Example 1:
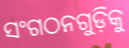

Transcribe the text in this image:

ସଂଗଠନଗୁଡ଼ିକୁ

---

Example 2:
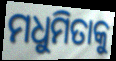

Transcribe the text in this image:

ମଧୁମିତାକୁ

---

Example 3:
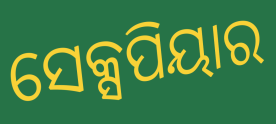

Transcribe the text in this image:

ସେକ୍ସପିୟାର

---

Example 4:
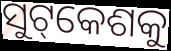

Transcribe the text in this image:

ସୁଟ୍‌କେଶକୁ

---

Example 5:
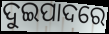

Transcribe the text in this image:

ଦୁଇପାଦରେ